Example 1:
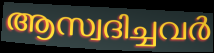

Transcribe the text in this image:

ആസ്വദിച്ചവർ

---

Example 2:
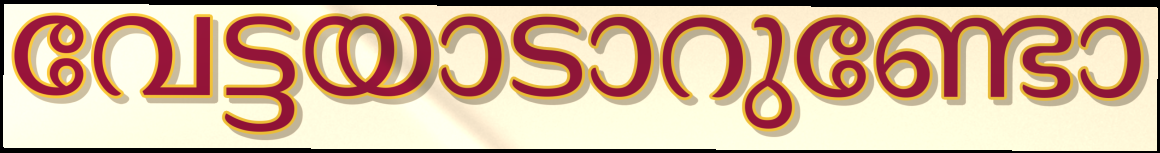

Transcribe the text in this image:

വേട്ടയാടാറുണ്ടോ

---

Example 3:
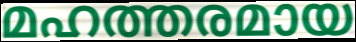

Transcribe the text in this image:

മഹത്തരമായ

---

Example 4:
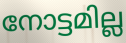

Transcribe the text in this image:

നോട്ടമില്ല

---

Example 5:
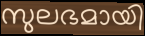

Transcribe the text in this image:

സുലഭമായി